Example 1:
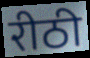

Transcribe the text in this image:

रीठी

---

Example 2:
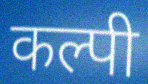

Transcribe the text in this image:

कल्पी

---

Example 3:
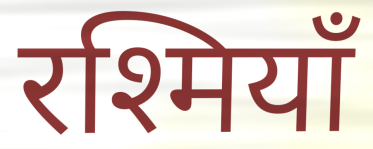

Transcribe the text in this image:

रश्मियाँ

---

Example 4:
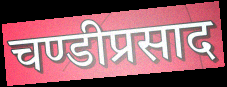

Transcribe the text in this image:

चण्डीप्रसाद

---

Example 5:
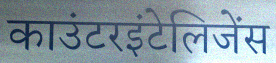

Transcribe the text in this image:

काउंटरइंटेलिजेंस